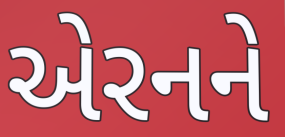
એરનને